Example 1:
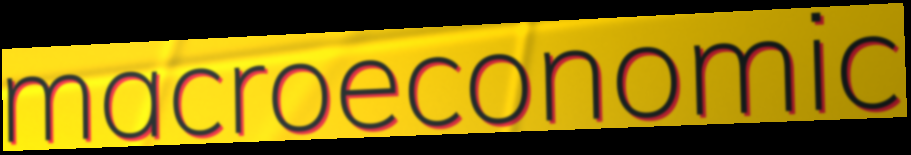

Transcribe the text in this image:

macroeconomic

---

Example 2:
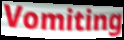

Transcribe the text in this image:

Vomiting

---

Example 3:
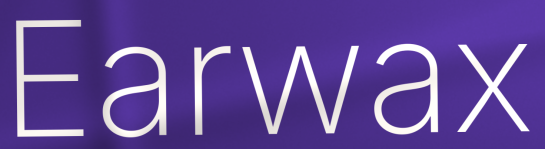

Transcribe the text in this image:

Earwax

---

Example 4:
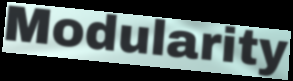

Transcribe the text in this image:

Modularity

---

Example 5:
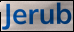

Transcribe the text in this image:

Jerub